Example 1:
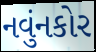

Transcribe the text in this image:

નવુંનકોર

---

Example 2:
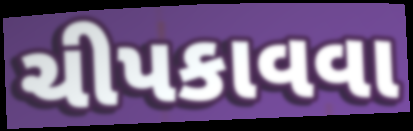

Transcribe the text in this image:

ચીપકાવવા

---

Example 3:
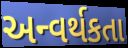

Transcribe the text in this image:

અન્વર્થકતા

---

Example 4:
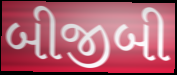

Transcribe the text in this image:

બીજીબી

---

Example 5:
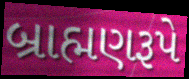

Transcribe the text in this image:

બ્રાહ્મણરૂપે